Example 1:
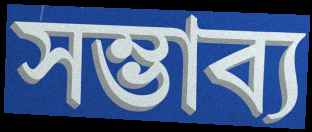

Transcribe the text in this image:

সম্ভাব্য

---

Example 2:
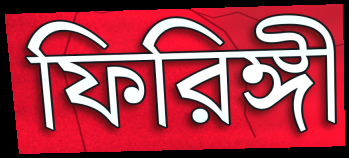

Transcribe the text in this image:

ফিরিঙ্গী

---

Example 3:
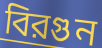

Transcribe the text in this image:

বিরগুন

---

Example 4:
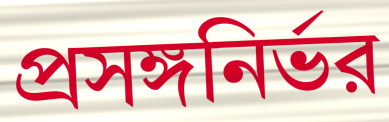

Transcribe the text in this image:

প্রসঙ্গনির্ভর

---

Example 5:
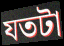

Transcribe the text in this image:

যতটা